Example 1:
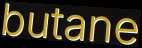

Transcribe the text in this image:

butane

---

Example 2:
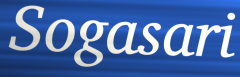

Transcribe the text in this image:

Sogasari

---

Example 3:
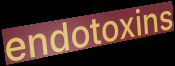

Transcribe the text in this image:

endotoxins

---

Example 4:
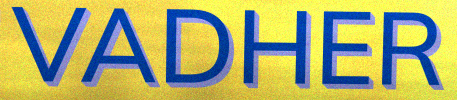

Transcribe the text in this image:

VADHER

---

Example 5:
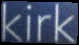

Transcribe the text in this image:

kirk